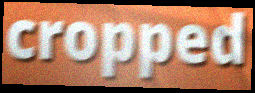
cropped